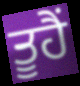
ਤੂਹੈਂ